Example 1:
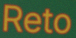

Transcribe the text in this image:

Reto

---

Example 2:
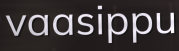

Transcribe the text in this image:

vaasippu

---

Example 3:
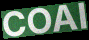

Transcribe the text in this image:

COAI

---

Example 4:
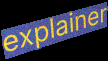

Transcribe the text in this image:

explainer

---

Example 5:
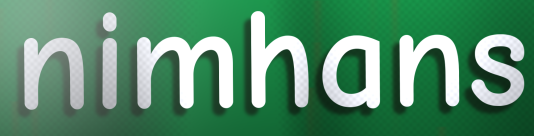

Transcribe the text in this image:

nimhans